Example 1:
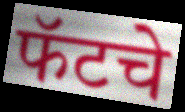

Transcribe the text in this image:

फॅटचे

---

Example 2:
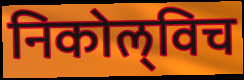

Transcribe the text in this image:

निकोल्विच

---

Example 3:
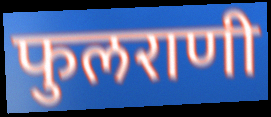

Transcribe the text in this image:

फुलराणी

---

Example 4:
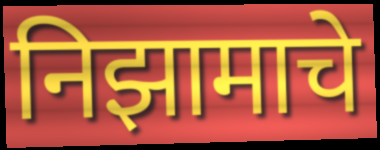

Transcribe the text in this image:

निझामाचे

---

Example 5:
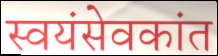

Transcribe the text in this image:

स्वयंसेवकांत